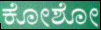
ಕೋಶೋ